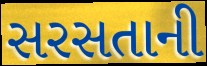
સરસતાની